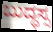
ಬುದ್ಧಸ್ಸ